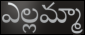
ఎల్లమ్మా